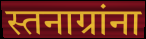
स्तनाग्रांना